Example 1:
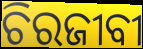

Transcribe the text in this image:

ଚିରଜୀବୀ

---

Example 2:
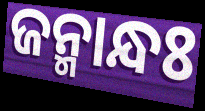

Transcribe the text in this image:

ଜନ୍ମାନ୍ଧଃ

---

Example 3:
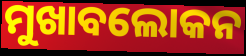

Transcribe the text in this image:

ମୁଖାବଲୋକନ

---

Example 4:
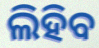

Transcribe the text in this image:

ଲିହିବ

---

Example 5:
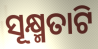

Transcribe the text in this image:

ସୂକ୍ଷ୍ମତାଟି